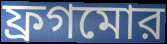
ফ্রগমোর